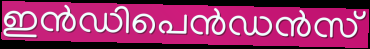
ഇൻഡിപെൻഡൻസ്